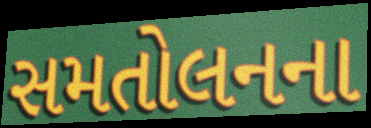
સમતોલનના